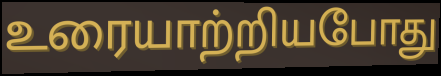
உரையாற்றியபோது